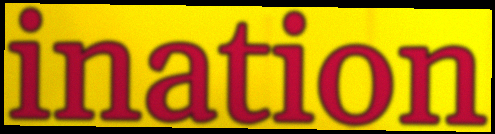
ination